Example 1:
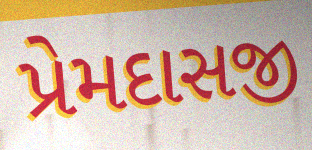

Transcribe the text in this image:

પ્રેમદાસજી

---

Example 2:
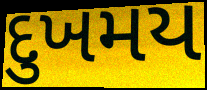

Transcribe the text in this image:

દુખમય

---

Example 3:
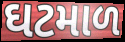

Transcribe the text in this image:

ઘટમાળ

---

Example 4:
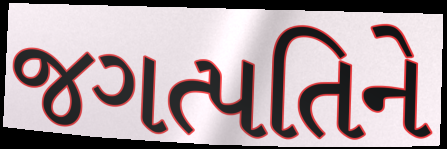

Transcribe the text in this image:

જગત્પતિને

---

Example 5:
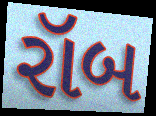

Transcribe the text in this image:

રૉબ